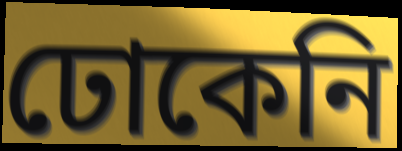
ঢোকেনি